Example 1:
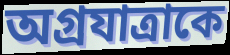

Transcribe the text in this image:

অগ্রযাত্রাকে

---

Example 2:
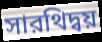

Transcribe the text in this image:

সারথিদ্বয়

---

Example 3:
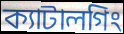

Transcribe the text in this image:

ক্যাটালগিং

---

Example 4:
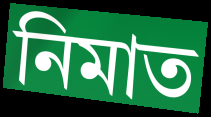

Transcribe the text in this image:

নিমাত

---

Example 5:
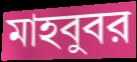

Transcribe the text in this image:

মাহবুবর